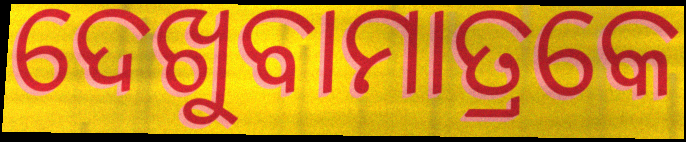
ଦେଖୁବାମାତ୍ରକେ